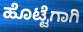
ಹೊಟ್ಟೆಗಾಗಿ